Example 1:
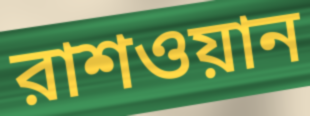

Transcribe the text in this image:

রাশওয়ান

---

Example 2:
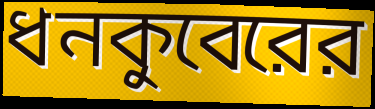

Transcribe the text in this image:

ধনকুবেরের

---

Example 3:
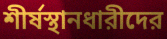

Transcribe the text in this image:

শীর্ষস্থানধারীদের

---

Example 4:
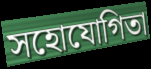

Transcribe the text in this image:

সহোযোগিতা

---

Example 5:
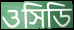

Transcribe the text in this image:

ওসিডি